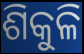
ଶିକୁଳି